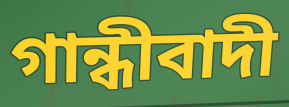
গান্ধীবাদী